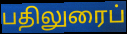
பதிலுரைப்